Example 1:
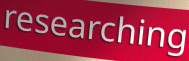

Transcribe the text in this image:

researching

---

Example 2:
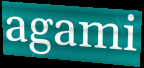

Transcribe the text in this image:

agami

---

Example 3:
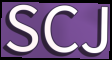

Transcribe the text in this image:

SCJ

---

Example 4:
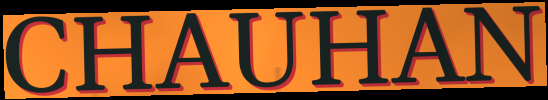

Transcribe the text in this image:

CHAUHAN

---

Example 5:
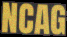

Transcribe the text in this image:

NCAG